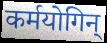
कर्मयोगिन्